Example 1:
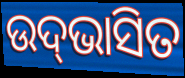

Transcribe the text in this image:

ଉଦ୍‍ଭାସିତ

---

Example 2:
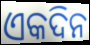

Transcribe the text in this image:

ଏକଦିନ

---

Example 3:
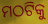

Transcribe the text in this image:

ମଠଟିକୁ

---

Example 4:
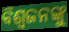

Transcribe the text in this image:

ବିଶ୍ୱଜନଙ୍କୁ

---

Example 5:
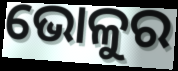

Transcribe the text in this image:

ଭୋଳୁର